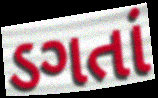
ડગતાં